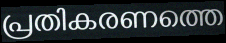
പ്രതികരണത്തെ